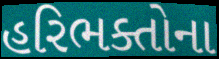
હરિભક્તોના